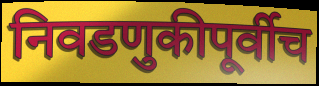
निवडणुकीपूर्वीच